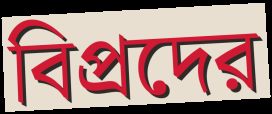
বিপ্রদের